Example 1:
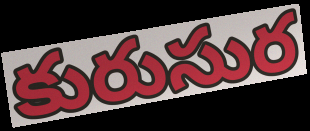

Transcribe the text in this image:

కురుసుర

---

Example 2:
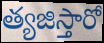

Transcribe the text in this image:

త్యజిస్తారో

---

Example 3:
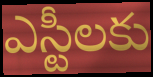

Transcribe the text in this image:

ఎస్టీలకు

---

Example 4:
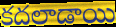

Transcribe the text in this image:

కదలాడాయి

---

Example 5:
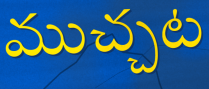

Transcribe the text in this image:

ముచ్చట